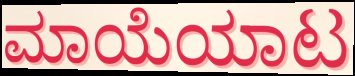
ಮಾಯೆಯಾಟ